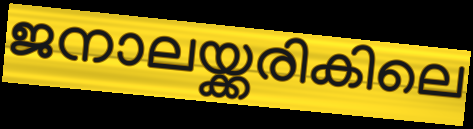
ജനാലയ്ക്കരികിലെ